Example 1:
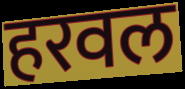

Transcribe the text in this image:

हरवल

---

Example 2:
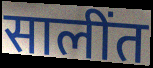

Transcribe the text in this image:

सालींत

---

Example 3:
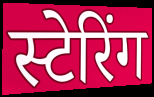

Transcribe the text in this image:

स्टेरिंग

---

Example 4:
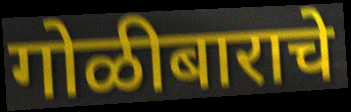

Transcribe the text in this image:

गोळीबाराचे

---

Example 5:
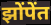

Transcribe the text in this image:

झोंपेंत